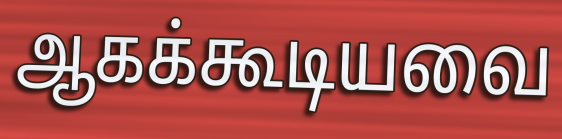
ஆகக்கூடியவை